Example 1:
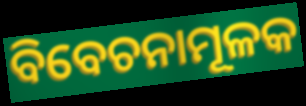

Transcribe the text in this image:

ବିବେଚନାମୂଳକ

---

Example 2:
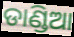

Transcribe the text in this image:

ଡାଣ୍ଡିଆ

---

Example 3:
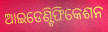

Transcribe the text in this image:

ଆଇଡେଣ୍ଟିଫିକେଶନ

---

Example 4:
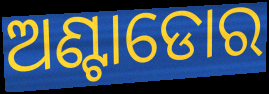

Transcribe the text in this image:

ଅଣ୍ଟାଡୋର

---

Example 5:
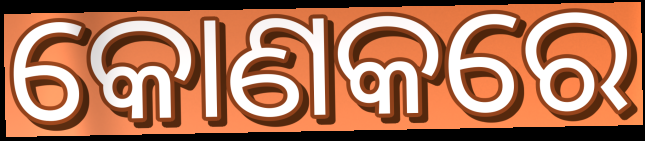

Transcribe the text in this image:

କୋଣକରେ